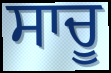
ਸਾਚੂ